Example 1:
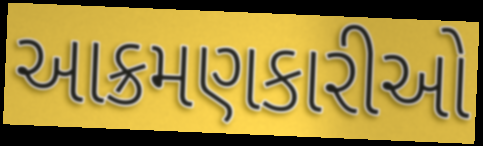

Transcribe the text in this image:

આક્રમણકારીઓ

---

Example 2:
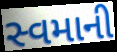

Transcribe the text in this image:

સ્વમાની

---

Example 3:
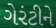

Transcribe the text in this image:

ગેરંટીને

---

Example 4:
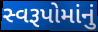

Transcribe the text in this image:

સ્વરૂપોમાંનું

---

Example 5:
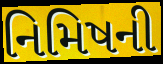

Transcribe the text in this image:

નિમિષની